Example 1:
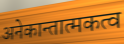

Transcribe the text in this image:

अनेकान्तात्मकत्व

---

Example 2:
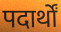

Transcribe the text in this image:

पदार्थों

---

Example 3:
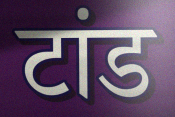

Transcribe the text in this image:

टांड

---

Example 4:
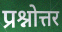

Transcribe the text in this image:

प्रश्नोत्तर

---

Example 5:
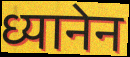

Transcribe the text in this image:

ध्यानेन